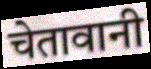
चेतावानी